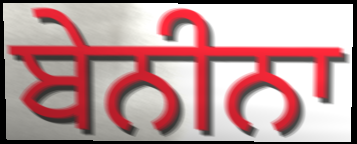
ਬੇਨੀਨਾ